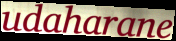
udaharane